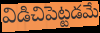
విడిచిపెట్టడమే